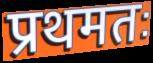
प्रथमतः